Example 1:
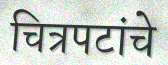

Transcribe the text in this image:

चित्रपटांचे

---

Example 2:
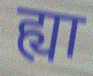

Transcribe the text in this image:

ह्या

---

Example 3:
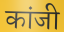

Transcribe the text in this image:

कांजी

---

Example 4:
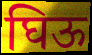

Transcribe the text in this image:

घिऊ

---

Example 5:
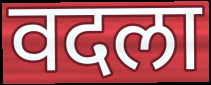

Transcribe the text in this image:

वदला